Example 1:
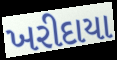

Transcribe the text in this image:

ખરીદાયા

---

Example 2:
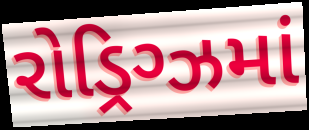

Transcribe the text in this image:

રોડ્રિગ્ઝમાં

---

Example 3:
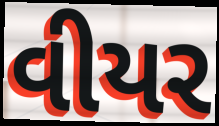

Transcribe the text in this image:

વીયર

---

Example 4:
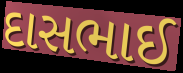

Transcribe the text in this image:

દાસભાઈ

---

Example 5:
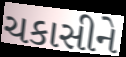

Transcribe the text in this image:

ચકાસીને